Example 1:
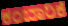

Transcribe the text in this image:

ಕಂಬಾರಿಕೆ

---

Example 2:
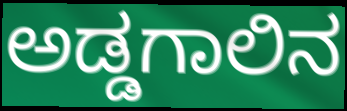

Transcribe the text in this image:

ಅಡ್ಡಗಾಲಿನ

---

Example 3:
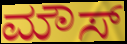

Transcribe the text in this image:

ಮೌಸ್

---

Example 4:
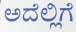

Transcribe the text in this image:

ಅದೆಲ್ಲಿಗೆ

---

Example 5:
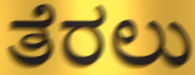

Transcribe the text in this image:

ತೆರಲು